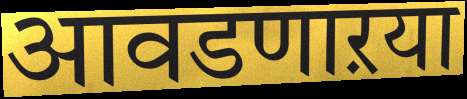
आवडणाऱया